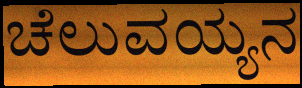
ಚೆಲುವಯ್ಯನ